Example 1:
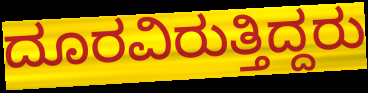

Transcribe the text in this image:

ದೂರವಿರುತ್ತಿದ್ದರು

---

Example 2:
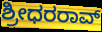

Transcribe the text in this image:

ಶ್ರೀಧರರಾವ್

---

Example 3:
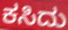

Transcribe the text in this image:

ಕಸಿದು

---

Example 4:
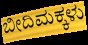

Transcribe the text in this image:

ಬೀದಿಮಕ್ಕಳು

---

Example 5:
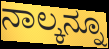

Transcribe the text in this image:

ನಾಲ್ಕನ್ನೂ